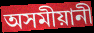
অসমীয়ানী